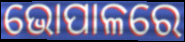
ଭୋପାଳରେ